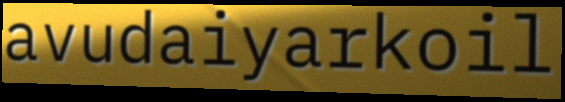
avudaiyarkoil